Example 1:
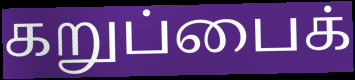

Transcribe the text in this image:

கறுப்பைக்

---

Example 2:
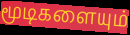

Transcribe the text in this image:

மூடிகளையும்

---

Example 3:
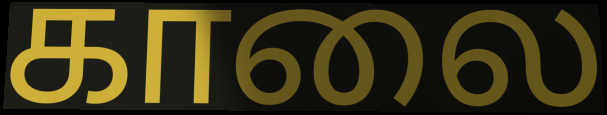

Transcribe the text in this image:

காலை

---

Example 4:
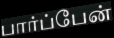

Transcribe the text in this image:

பார்ப்பேன்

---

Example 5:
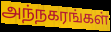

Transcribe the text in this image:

அந்நகரங்கள்